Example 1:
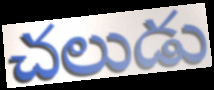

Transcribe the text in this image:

చలుడు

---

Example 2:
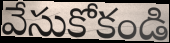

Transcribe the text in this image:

వేసుకోకండి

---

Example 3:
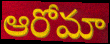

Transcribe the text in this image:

ఆరోమా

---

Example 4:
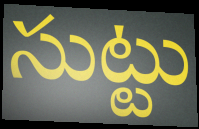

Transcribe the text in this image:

సుట్టు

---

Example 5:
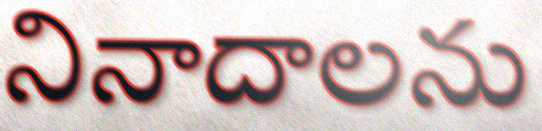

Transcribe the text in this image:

నినాదాలను